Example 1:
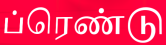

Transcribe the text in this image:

ப்ரெண்டு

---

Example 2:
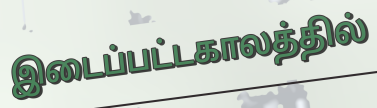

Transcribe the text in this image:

இடைப்பட்டகாலத்தில்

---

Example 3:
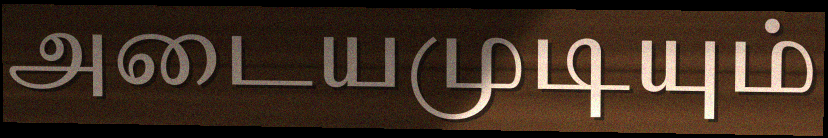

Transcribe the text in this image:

அடையமுடியும்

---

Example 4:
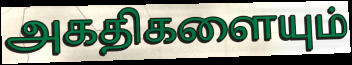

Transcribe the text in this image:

அகதிகளையும்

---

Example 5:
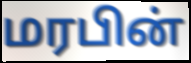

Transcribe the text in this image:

மரபின்